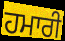
ਹਮਾਰੀ